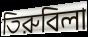
তিৰুবিলা